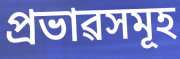
প্ৰভাৱসমূহ